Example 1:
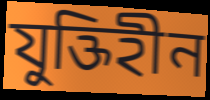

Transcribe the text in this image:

যুক্তিহীন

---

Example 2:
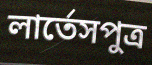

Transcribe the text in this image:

লার্তেসপুত্র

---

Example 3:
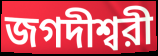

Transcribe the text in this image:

জগদীশ্বরী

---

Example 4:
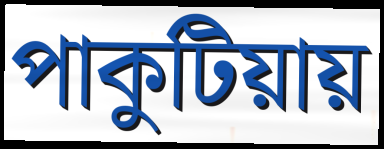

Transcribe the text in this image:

পাকুটিয়ায়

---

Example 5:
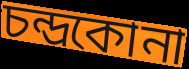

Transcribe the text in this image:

চন্দ্রকোনা